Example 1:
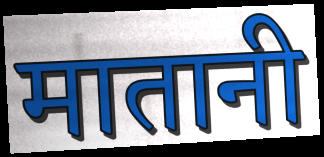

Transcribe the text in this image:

मातानी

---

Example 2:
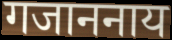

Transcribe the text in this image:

गजाननाय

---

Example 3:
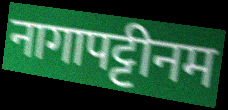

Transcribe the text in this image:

नागापट्टीनम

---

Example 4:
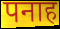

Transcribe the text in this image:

पनाह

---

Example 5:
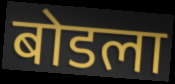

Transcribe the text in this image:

बोडला